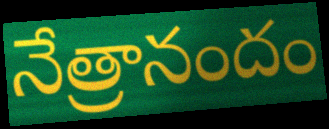
నేత్రానందం